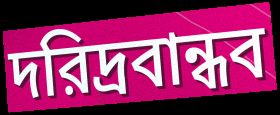
দরিদ্রবান্ধব